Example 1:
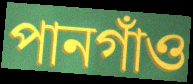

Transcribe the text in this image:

পানগাঁও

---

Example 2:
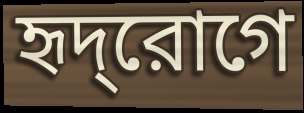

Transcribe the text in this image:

হৃদ্‌রোগে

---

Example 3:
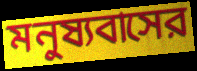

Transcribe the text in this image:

মনুষ্যবাসের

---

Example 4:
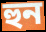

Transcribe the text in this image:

হুন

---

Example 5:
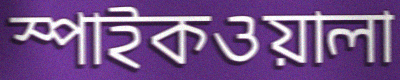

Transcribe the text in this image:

স্পাইকওয়ালা